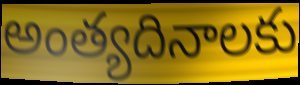
అంత్యదినాలకు